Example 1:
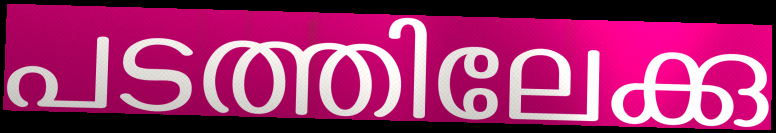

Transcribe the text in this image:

പടത്തിലേക്കു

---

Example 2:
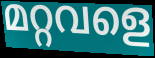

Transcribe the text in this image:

മറ്റവളെ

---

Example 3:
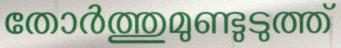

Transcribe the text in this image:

തോർത്തുമുണ്ടുടുത്ത്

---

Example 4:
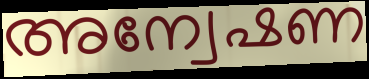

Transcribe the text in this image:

അന്വേഷണ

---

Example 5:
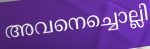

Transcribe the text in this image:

അവനെച്ചൊല്ലി